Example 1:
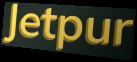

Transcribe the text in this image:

Jetpur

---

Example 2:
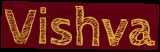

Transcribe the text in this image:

Vishva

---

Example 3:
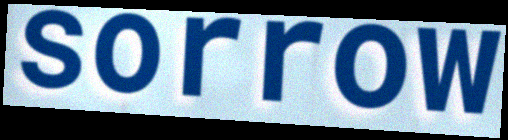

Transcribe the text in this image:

sorrow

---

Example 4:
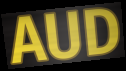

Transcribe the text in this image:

AUD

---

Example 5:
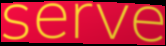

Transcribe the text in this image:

serve